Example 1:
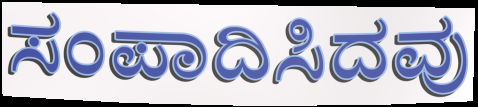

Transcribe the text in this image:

ಸಂಪಾದಿಸಿದವು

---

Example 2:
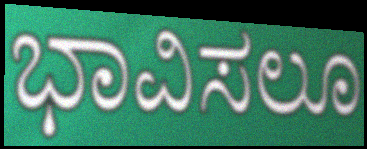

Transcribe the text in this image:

ಭಾವಿಸಲೂ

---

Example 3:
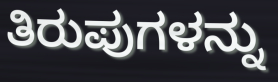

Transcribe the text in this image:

ತಿರುಪುಗಳನ್ನು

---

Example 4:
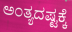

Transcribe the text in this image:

ಅಂತ್ಯದಷ್ಟಕ್ಕೆ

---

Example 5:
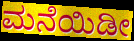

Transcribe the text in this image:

ಮನೆಯಿಡೀ